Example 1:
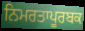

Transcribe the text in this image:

ਨਿਮਰਤਾਪੂਰਬਕ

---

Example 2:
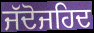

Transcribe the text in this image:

ਜੱਦੋਜਹਿਦ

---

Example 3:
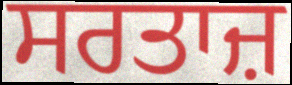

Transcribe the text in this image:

ਸਰਤਾਜ਼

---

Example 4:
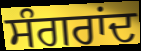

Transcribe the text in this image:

ਸੰਗਰਾਂਦ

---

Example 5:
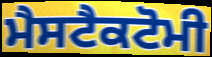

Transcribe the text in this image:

ਮੈਸਟੈਕਟੋਮੀ